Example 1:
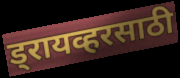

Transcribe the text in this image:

ड्रायव्हरसाठी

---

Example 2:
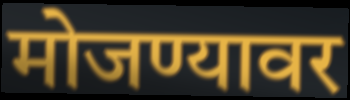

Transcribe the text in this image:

मोजण्यावर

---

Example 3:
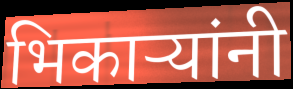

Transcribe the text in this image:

भिकाऱ्यांनी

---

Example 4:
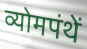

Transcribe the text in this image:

व्योमपंथें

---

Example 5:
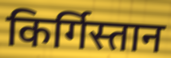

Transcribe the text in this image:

किर्गिस्तान